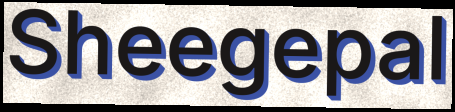
Sheegepal